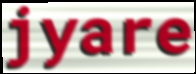
jyare